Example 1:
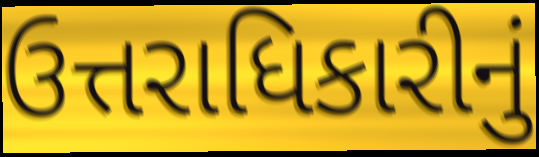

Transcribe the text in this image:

ઉત્તરાધિકારીનું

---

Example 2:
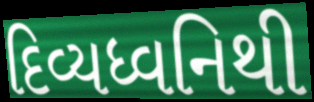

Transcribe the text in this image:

દિવ્યધ્વનિથી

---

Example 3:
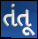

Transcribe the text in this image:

તંતૂ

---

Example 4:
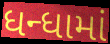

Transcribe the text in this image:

ધન્ધામાં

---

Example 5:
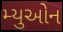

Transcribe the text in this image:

મ્યુઓન